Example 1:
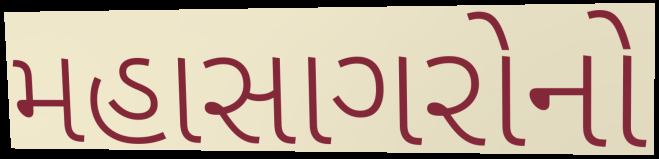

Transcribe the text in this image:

મહાસાગરોનો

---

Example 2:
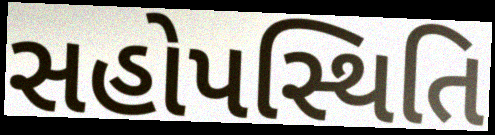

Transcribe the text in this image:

સહોપસ્થિતિ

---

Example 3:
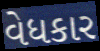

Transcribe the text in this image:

વેધકાર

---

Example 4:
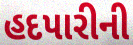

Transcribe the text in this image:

હદપારીની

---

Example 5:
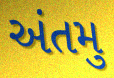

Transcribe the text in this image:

અંતમુ